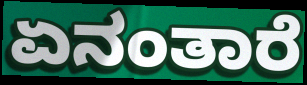
ಏನಂತಾರೆ